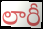
లారీ